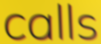
calls